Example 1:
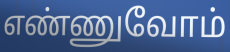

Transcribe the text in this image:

எண்ணுவோம்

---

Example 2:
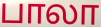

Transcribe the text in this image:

பாலா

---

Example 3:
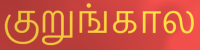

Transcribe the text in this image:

குறுங்கால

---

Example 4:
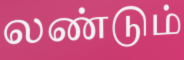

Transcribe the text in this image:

லண்டும்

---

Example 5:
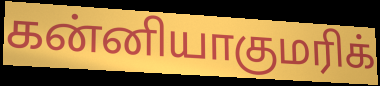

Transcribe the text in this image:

கன்னியாகுமரிக்